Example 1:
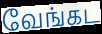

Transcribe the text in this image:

வேங்கட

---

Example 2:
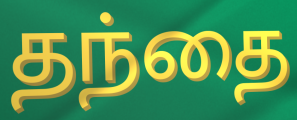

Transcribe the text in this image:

தந்தை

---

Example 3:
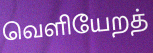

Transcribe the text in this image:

வெளியேறத்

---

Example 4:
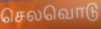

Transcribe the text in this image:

செலவொடு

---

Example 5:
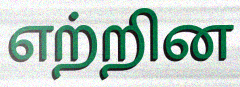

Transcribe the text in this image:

எற்றின